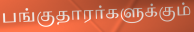
பங்குதாரர்களுக்கும்